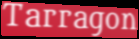
Tarragon